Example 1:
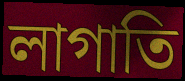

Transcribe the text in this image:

লাগাতি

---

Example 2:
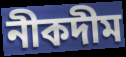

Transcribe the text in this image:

নীকদীম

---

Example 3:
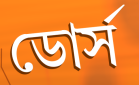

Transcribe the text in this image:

ডোর্স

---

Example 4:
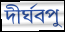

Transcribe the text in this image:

দীর্ঘবপু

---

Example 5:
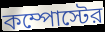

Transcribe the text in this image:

কম্পোস্টের